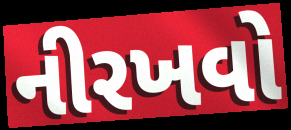
નીરખવો